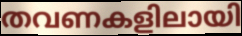
തവണകളിലായി